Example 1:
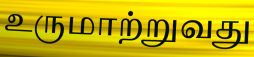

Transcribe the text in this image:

உருமாற்றுவது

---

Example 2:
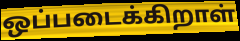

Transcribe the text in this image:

ஒப்படைக்கிறாள்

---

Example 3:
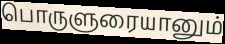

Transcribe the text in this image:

பொருளுரையானும்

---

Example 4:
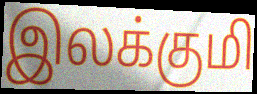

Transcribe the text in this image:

இலக்குமி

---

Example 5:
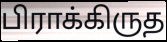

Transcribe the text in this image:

பிராக்கிருத